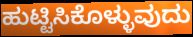
ಹುಟ್ಟಿಸಿಕೊಳ್ಳುವುದು